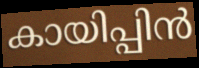
കായിപ്പിൻ